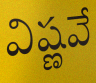
విష్ణవే